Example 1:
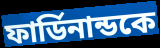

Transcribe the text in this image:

ফার্ডিনান্ডকে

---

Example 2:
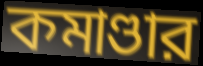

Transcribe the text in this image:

কমাণ্ডার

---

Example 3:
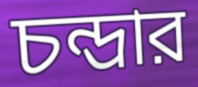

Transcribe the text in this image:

চন্দ্রার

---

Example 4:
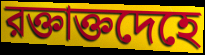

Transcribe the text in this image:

রক্তাক্তদেহে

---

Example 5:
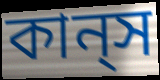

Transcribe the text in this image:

কান্‌স